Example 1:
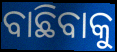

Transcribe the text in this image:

ବାଛିବାକୁ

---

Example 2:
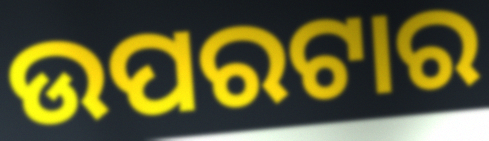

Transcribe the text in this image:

ଉପରଟାର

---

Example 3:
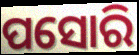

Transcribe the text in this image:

ପସୋରି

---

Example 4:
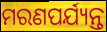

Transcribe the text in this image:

ମରଣପର୍ଯ୍ୟନ୍ତ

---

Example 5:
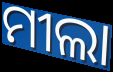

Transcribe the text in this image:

ମୀଲା